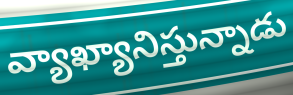
వ్యాఖ్యానిస్తున్నాడు